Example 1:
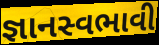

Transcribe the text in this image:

જ્ઞાનસ્વભાવી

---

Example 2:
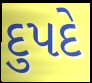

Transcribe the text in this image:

દુપદે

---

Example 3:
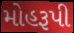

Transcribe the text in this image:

મોહરૂપી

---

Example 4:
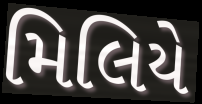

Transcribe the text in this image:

મિલિયે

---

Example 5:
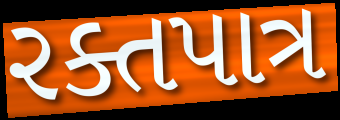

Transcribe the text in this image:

રક્તપાત્ર